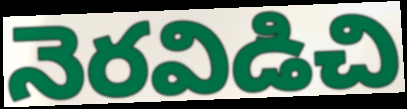
నెరవిడిచి